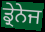
ਡ੍ਰੇਨੇਜ